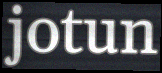
jotun